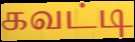
கவட்டி